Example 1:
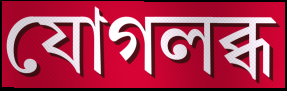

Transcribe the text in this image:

যোগলব্ধ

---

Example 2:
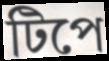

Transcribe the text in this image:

টিপে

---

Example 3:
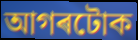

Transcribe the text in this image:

আগৰটোক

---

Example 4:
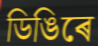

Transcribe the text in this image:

ডিঙিৰে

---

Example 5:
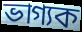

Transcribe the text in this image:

ভাগ্যক